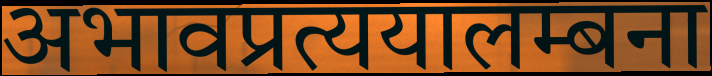
अभावप्रत्ययालम्बना